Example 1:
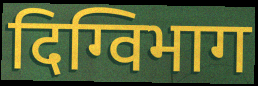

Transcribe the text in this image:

दिग्विभाग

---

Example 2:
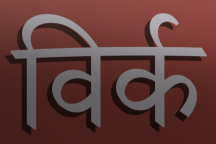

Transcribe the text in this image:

विर्क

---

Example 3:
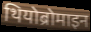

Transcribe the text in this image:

थियोब्रोमाइन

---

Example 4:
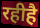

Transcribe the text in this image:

रहीहै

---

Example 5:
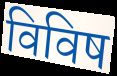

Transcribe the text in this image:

विविष